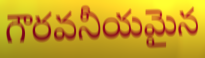
గౌరవనీయమైన